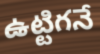
ఉట్టిగనే